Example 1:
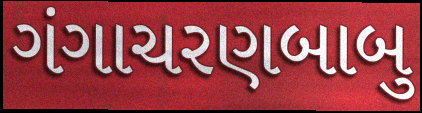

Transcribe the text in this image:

ગંગાચરણબાબુ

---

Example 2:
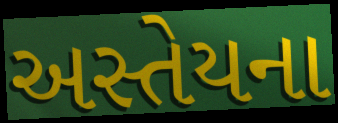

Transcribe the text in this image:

અસ્તેયના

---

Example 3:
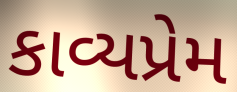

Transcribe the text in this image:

કાવ્યપ્રેમ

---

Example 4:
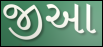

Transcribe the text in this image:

જીઆ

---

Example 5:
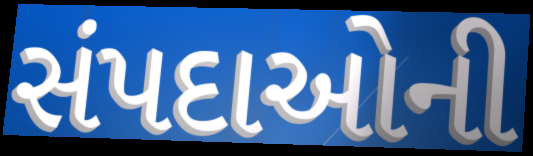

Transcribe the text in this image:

સંપદાઓની